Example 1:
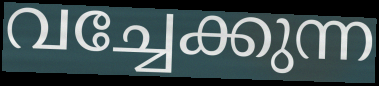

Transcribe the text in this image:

വച്ചേക്കുന്ന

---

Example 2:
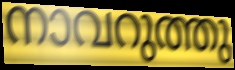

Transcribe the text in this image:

നാവറുത്തു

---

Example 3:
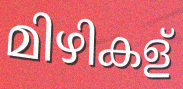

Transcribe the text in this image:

മിഴികള്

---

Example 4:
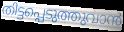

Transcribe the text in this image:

തിട്ടപ്പെടുത്തുവാൻ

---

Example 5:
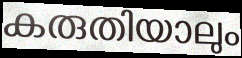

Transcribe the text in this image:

കരുതിയാലും